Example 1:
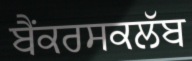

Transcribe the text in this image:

ਬੈਂਕਰਸਕਲੱਬ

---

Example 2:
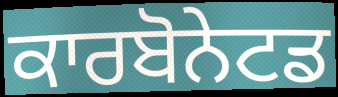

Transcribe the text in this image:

ਕਾਰਬੋਨੇਟਡ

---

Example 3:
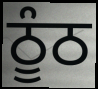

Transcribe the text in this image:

ਠੂੰਠ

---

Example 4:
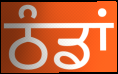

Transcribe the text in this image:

ਠੰਡਾਂ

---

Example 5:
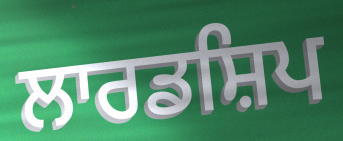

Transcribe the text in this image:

ਲਾਰਡਸ਼ਿਪ